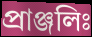
প্রাঞ্জলিঃ